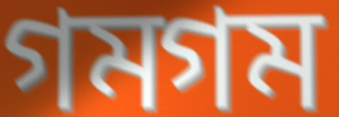
গমগম